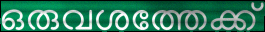
ഒരുവശത്തേക്ക്